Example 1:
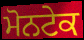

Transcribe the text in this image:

ਮੋਨਟੇਕ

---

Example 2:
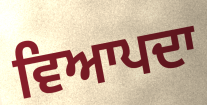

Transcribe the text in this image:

ਵਿਆਪਦਾ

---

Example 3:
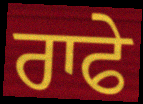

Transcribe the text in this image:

ਰਾਫੇ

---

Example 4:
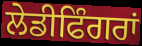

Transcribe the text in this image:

ਲੇਡੀਫਿੰਗਰਾਂ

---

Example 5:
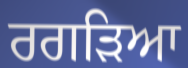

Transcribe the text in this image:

ਰਗੜਿਆ